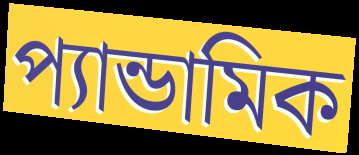
প্যান্ডামিক